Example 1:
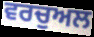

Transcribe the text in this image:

ਵਰਚੁਅਲ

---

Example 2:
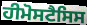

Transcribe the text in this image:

ਹੀਮੋਸਟੈਸਿਸ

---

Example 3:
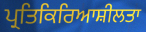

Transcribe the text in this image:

ਪ੍ਰਤਿਕਿਰਿਆਸ਼ੀਲਤਾ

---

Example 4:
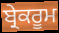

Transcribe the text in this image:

ਬ੍ਰੇਕਰੂਮ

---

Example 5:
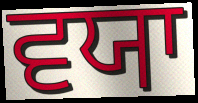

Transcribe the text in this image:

ਵਯਾ